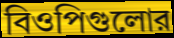
বিওপিগুলোর